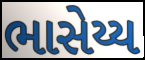
ભાસેય્ય